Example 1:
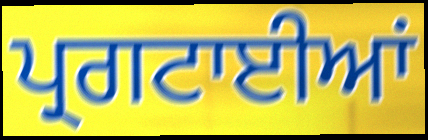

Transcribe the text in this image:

ਪ੍ਰਗਟਾਈਆਂ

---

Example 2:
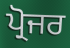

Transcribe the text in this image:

ਪ੍ਰੋਜਰ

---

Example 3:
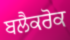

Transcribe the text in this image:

ਬਲੈਕਰੋਕ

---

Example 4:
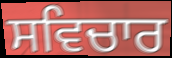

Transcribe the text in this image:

ਸਵਿਚਾਰ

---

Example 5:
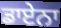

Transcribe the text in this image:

ਡਾਏਨਾ